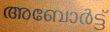
അബോർട്ട്